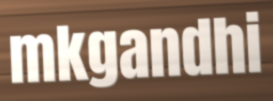
mkgandhi